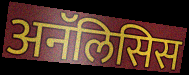
अनॅलिसिस